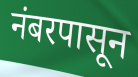
नंबरपासून